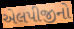
એલપીજીનો